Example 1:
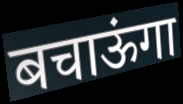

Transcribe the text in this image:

बचाऊंगा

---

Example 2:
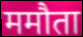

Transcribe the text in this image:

ममौता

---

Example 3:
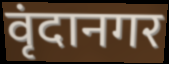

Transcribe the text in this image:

वृंदानगर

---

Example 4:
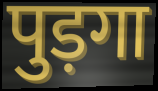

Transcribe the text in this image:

पुड़गा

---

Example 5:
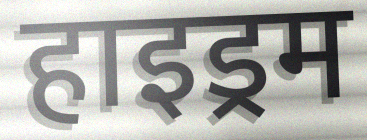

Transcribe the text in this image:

हाइड्रम